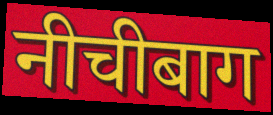
नीचीबाग